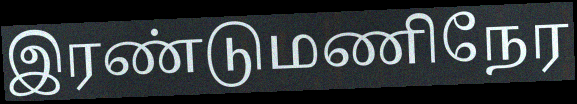
இரண்டுமணிநேர